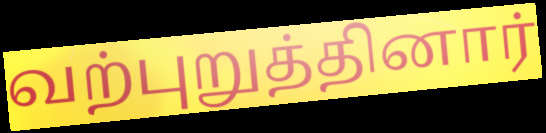
வற்புறுத்தினார்